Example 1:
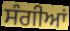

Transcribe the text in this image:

ਸੰਗੀਆਂ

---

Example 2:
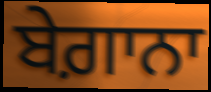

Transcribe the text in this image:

ਬੇਗ਼ਾਨਾ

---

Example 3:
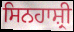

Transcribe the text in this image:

ਸਿਨਹਾਸ਼੍ਰੀ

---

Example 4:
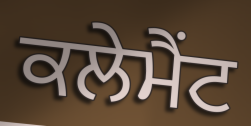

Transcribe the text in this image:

ਕਲੇਮੈਂਟ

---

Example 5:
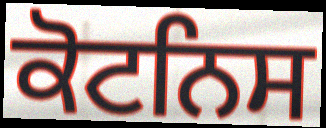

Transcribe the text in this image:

ਕੋਟਨਿਸ